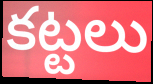
కట్టలు